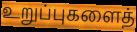
உறுப்புகளைத்